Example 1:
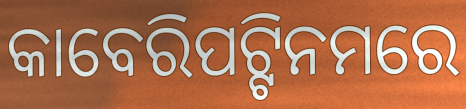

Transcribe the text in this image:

କାବେରିପଟ୍ଟିନମରେ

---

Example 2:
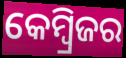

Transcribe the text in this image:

କେମ୍ୱ୍ରିଜର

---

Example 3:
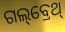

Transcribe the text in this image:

ଗଲ୍‌ବ୍ରେଥ୍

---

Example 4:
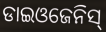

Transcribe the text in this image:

ଡାଇଓଜେନିସ୍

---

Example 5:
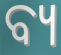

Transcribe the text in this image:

ବ୍ୟ